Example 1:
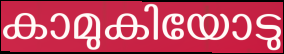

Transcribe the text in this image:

കാമുകിയോടു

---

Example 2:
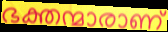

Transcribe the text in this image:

ഭക്തന്മാരാണ്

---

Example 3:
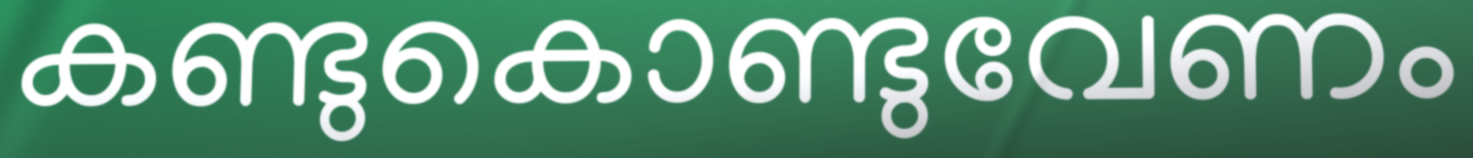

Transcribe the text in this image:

കണ്ടുകൊണ്ടുവേണം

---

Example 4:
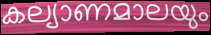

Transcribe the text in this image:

കല്യാണമാലയും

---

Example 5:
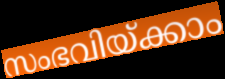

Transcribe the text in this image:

സംഭവിയ്ക്കാം